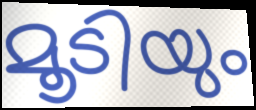
മൂടിയും